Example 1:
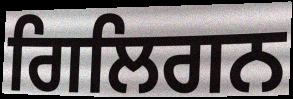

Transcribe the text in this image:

ਗਿਲਿਗਨ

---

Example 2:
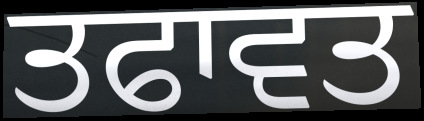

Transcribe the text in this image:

ਤਫਾਵਤ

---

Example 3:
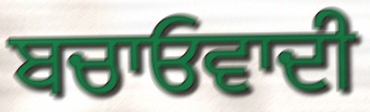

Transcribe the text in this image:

ਬਚਾਓਵਾਦੀ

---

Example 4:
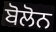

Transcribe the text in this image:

ਬੋਲੋਨ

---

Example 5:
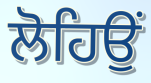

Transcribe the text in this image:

ਲੋਹਿਉਂ